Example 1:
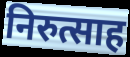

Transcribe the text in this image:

निरुत्साह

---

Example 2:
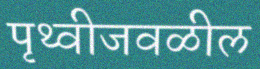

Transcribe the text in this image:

पृथ्वीजवळील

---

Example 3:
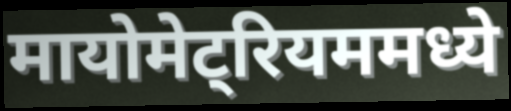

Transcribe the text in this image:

मायोमेट्रियममध्ये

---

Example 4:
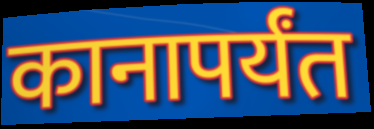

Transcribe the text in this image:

कानापर्यंत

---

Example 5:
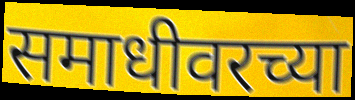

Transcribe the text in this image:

समाधीवरच्या